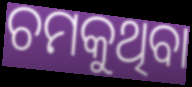
ଚମକୁଥିବା